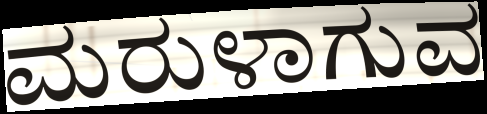
ಮರುಳಾಗುವ